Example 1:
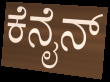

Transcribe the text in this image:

ಕೆನೈನ್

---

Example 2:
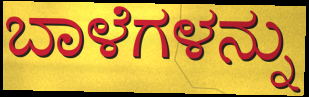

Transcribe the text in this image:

ಬಾಳೆಗಳನ್ನು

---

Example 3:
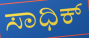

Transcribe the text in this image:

ಸಾಧಿಕ್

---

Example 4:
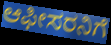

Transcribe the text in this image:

ಆಫೀಸರನಿಗೆ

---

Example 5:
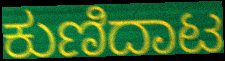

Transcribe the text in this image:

ಕುಣಿದಾಟ